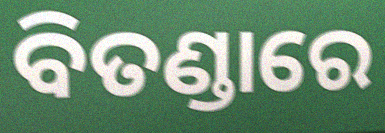
ବିତଣ୍ଡାରେ